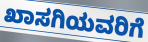
ಖಾಸಗಿಯವರಿಗೆ